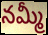
నమ్మీ